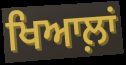
ਖਿਆਲ਼ਾਂ